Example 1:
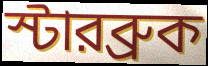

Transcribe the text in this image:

স্টারব্রুক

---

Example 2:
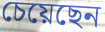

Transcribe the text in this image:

চেয়েছেন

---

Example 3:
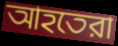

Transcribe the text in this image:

আহতেরা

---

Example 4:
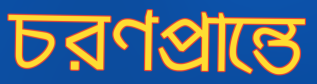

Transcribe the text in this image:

চরণপ্রান্তে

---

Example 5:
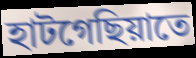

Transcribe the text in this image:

হাটগেছিয়াতে